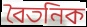
বৈতনিক